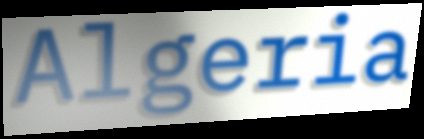
Algeria